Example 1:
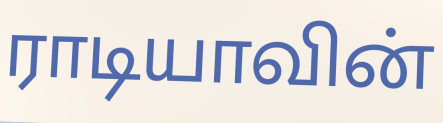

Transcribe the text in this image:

ராடியாவின்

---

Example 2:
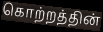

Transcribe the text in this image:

கொற்றத்தின்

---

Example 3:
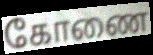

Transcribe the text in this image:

கோணை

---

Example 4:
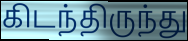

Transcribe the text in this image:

கிடந்திருந்து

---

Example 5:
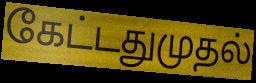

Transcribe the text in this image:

கேட்டதுமுதல்